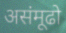
असंमूढो